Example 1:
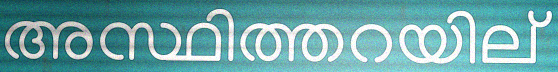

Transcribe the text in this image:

അസ്ഥിത്തറയില്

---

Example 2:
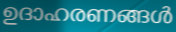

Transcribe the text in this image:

ഉദാഹരണങ്ങൾ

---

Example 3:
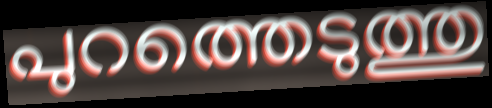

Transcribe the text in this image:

പുറത്തെടുത്തു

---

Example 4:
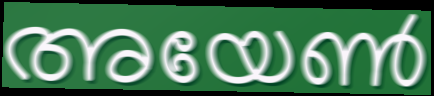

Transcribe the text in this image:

അയേൺ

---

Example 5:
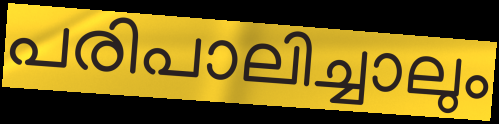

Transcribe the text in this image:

പരിപാലിച്ചാലും